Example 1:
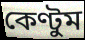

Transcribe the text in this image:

কেণ্টুম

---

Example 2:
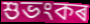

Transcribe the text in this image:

শুভংকৰ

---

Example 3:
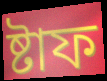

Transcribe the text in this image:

ষ্টাফ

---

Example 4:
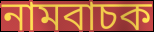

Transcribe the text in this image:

নামবাচক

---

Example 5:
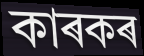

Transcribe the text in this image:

কাৰকৰ